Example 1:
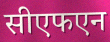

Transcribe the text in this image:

सीएफएन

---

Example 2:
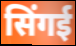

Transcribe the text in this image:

सिंगई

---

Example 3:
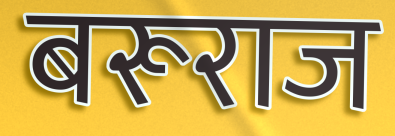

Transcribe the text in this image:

बरूराज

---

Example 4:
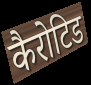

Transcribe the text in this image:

कैरोटिड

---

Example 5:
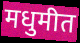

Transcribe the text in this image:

मधुमीत